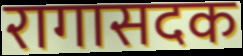
रागासदक